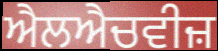
ਐਲਐਚਵੀਜ਼